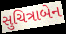
સુચિત્રાબેન